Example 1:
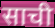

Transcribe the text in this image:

साची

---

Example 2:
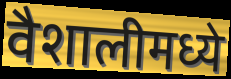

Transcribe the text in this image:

वैशालीमध्ये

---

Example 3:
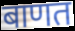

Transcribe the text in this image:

बाणत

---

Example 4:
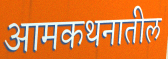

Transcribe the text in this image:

आमकथनातील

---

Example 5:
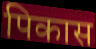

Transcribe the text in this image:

पिकास